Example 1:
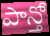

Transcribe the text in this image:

పాన్తో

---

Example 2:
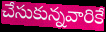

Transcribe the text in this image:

చేసుకున్నవారికే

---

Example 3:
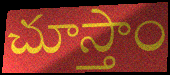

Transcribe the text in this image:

చూస్తాం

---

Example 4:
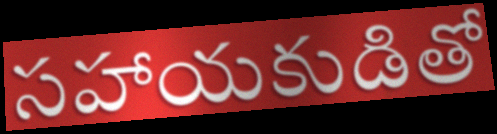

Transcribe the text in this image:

సహాయకుడితో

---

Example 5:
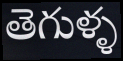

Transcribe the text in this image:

తెగుళ్ళ